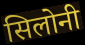
सिलोनी